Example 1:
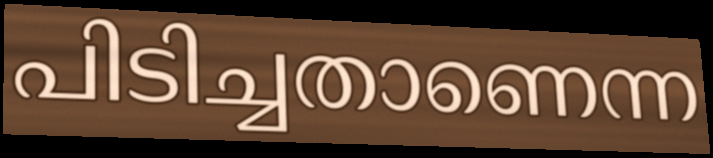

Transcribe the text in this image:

പിടിച്ചതാണെന്ന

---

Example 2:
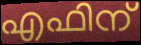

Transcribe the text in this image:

എഫിന്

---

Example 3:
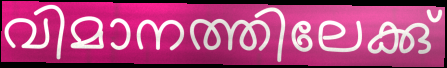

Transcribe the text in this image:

വിമാനത്തിലേക്കു്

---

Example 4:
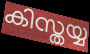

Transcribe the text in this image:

കിസ്തയ്യ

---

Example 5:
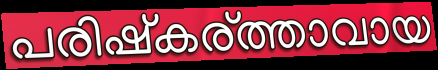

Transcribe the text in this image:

പരിഷ്കര്ത്താവായ